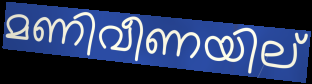
മണിവീണയില്